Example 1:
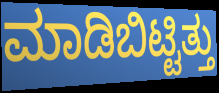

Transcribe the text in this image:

ಮಾಡಿಬಿಟ್ಟಿತ್ತು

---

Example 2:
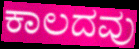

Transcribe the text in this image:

ಕಾಲದವು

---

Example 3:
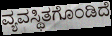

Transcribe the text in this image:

ವ್ಯವಸ್ಥಿತಗೊಂಡಿದೆ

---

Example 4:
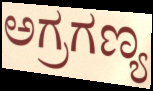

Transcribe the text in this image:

ಅಗ್ರಗಣ್ಯ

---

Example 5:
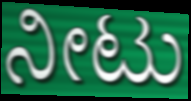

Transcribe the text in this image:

ನೀಟು